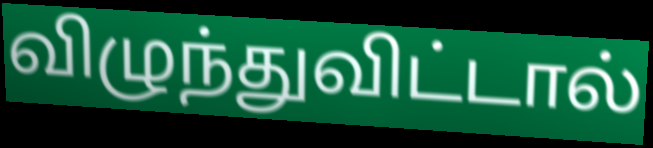
விழுந்துவிட்டால்